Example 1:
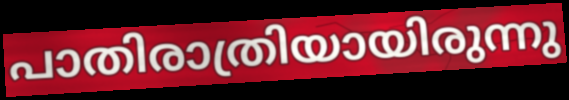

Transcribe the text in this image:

പാതിരാത്രിയായിരുന്നു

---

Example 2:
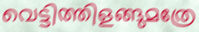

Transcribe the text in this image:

വെട്ടിത്തിളങ്ങുമത്രേ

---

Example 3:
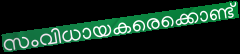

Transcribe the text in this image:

സംവിധായകരെക്കൊണ്ട്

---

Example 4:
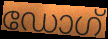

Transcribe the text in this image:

ഡോഗ്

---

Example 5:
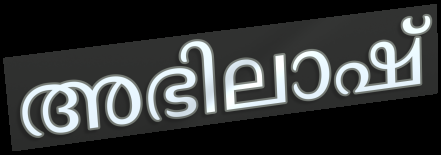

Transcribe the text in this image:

അഭിലാഷ്